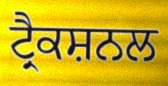
ਟ੍ਰੈਕਸ਼ਨਲ